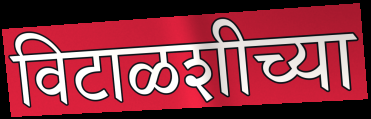
विटाळशीच्या